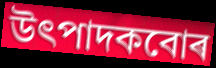
উৎপাদকবোৰ